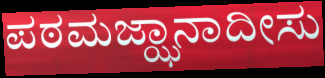
ಪಠಮಜ್ಝಾನಾದೀಸು